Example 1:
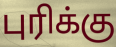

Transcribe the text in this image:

புரிக்கு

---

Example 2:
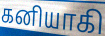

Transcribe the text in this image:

கனியாகி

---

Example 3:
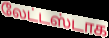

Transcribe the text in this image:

லேட்டஸ்டாக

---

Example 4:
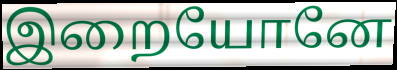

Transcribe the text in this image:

இறையோனே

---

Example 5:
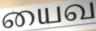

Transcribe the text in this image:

யைவ